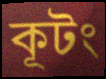
কূটং